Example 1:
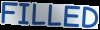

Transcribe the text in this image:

FILLED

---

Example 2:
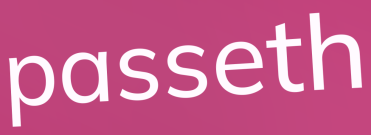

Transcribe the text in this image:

passeth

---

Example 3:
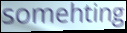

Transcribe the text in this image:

somehting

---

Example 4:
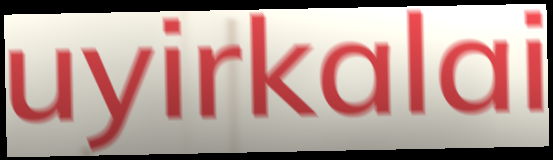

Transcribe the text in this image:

uyirkalai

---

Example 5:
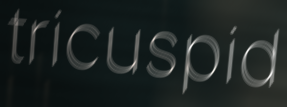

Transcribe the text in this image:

tricuspid